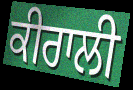
ਕੀਰਾਲੀ